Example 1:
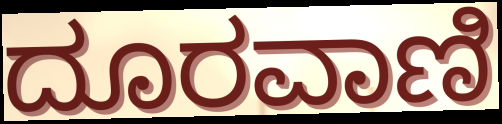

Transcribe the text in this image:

ದೂರವಾಣಿ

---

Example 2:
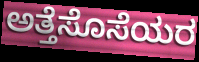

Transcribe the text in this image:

ಅತ್ತೆಸೊಸೆಯರ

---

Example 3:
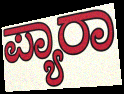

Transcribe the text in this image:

ಪ್ಯಾರಾ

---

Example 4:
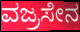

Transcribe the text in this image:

ವಜ್ರಸೇನ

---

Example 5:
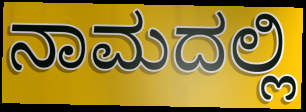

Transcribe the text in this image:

ನಾಮದಲ್ಲಿ